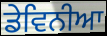
ਡੇਵਿਨੀਆ